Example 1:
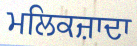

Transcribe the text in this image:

ਮਲਿਕਜ਼ਾਦਾ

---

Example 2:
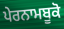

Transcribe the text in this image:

ਪੇਰਨਾਮਬੂਕੋ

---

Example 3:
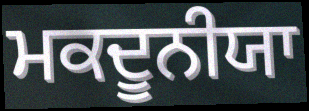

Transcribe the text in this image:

ਮਕਦੂਨੀਯਾ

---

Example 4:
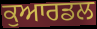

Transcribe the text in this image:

ਕੁਆਰਡਲ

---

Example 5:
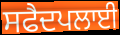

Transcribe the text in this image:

ਸਫੈਦਪਲਾਈ